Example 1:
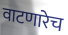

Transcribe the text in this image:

वाटणारेच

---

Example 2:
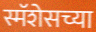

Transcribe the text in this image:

स्मॅशेसच्या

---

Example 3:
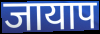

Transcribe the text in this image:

जायाप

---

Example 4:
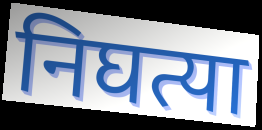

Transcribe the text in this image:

निघत्या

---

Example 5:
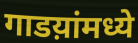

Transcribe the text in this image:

गाडय़ांमध्ये